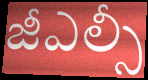
జీఎల్సీ